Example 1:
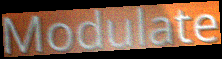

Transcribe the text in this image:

Modulate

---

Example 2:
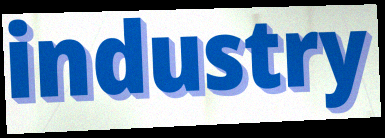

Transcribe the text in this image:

industry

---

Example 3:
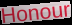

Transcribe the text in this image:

Honour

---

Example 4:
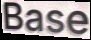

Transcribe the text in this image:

Base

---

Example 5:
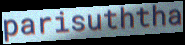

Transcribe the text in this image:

parisuththa